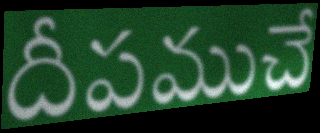
దీపముచే